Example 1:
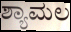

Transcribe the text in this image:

ಶ್ಯಾಮಲ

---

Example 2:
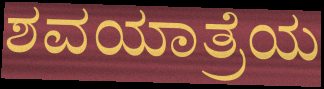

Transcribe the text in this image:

ಶವಯಾತ್ರೆಯ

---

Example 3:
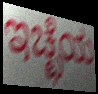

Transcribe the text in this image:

ಇಚ್ಛೆಯ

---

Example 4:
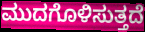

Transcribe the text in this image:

ಮುದಗೊಳಿಸುತ್ತದೆ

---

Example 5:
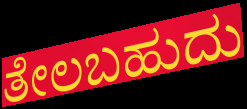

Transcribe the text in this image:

ತೇಲಬಹುದು